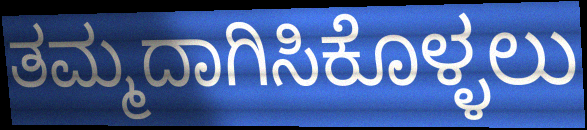
ತಮ್ಮದಾಗಿಸಿಕೊಳ್ಳಲು